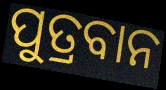
ପୁତ୍ରବାନ